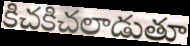
కిచకిచలాడుతూ